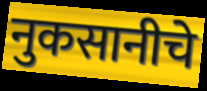
नुकसानीचे